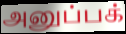
அனுப்பக்